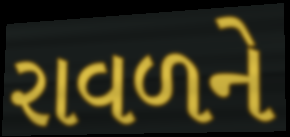
રાવળને